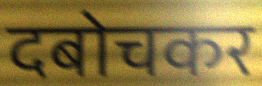
दबोचकर